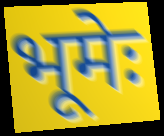
भूमेः